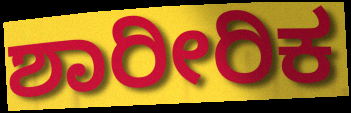
ಶಾರೀರಿಕ